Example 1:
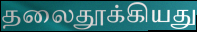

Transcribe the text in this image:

தலைதூக்கியது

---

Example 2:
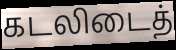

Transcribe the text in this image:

கடலிடைத்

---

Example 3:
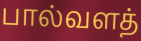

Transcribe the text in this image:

பால்வளத்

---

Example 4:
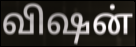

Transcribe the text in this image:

விஷன்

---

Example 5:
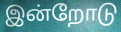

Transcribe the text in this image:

இன்றோடு